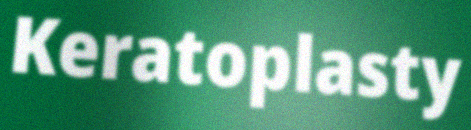
Keratoplasty